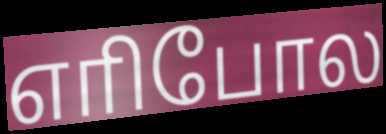
எரிபோல